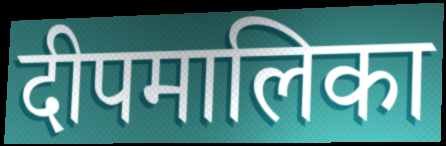
दीपमालिका